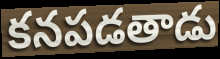
కనపడతాడు